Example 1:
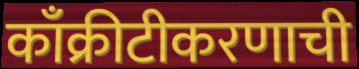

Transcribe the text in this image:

काँक्रीटीकरणाची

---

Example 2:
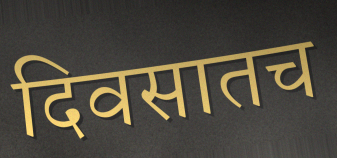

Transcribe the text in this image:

दिवसातच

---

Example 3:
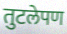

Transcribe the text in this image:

तुटलेपण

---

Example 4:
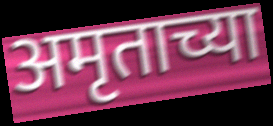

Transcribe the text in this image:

अमृताच्या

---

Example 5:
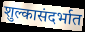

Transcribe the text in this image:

शुल्कासंदर्भात